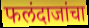
फलंदाजांचा